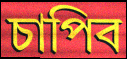
চাপিব